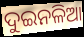
ଦୁଇନଳିଆ